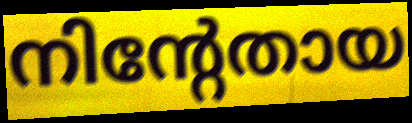
നിന്റേതായ